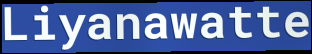
Liyanawatte